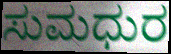
ಸುಮಧುರ